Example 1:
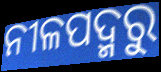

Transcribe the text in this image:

ନୀଳପଦ୍ମରୁ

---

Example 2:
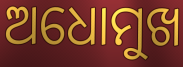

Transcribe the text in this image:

ଅଧୋମୁଖ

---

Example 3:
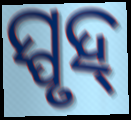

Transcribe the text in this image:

ସ୍ପୃହ୍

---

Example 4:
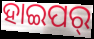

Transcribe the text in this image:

ହାଇପର୍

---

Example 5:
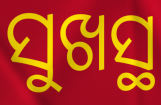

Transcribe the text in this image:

ସୁଖସ୍ଥ